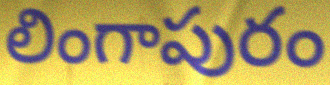
లింగాపురం